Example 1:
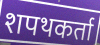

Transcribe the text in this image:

शपथकर्ता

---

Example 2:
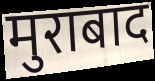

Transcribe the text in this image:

मुराबाद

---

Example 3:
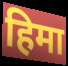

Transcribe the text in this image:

हिमा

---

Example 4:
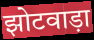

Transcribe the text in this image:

झोटवाड़ा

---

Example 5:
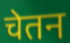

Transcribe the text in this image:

चेतन